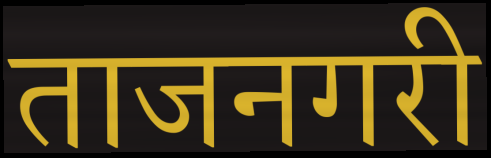
ताजनगरी